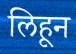
लिहून